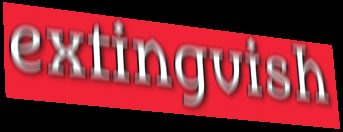
extinguish